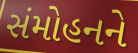
સંમોહનને